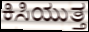
ಕಿಸಿಯುತ್ತ